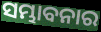
ସମ୍ଭାବନାର